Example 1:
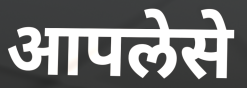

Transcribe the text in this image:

आपलेसे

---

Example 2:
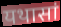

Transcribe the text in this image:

यथासां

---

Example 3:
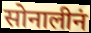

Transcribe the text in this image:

सोनालीनं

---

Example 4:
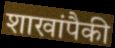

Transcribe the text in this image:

शाखांपैकी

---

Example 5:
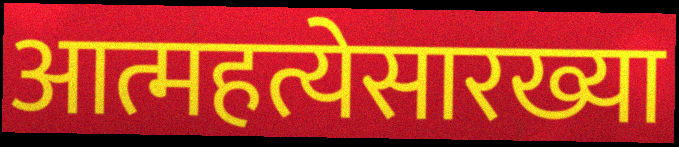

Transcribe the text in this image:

आत्महत्येसारख्या